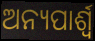
ଅନ୍ୟପାର୍ଶ୍ୱ